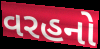
વરહનો